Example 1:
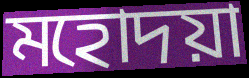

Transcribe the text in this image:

মহোদয়া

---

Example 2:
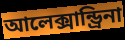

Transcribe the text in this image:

আলেক্সান্ড্রিনা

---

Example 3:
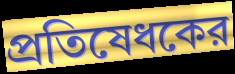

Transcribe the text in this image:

প্রতিষেধকের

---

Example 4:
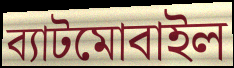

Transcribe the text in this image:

ব্যাটমোবাইল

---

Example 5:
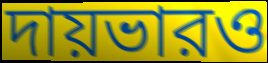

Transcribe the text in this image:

দায়ভারও